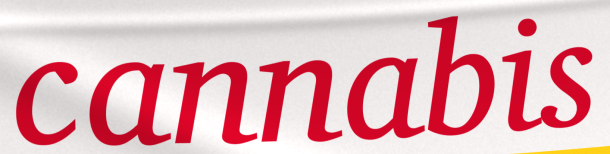
cannabis